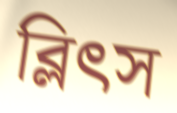
ব্লিৎস